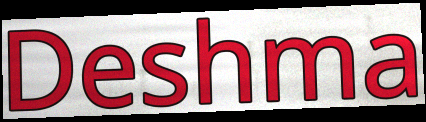
Deshma